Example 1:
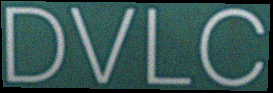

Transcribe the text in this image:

DVLC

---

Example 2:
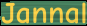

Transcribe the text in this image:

Jannal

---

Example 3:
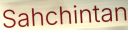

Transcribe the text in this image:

Sahchintan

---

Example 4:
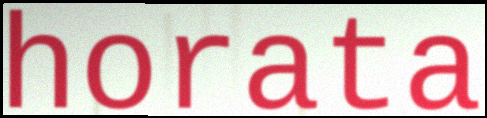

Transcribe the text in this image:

horata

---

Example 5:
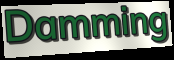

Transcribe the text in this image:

Damming